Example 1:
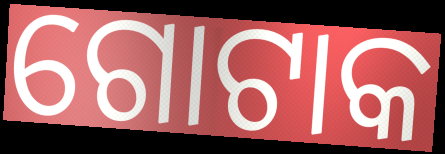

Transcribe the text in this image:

ଗୋଟାକ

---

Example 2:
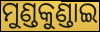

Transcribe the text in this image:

ମୁଣ୍ଡକୁଣ୍ଡାଇ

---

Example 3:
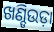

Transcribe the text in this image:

ଖଣ୍ଡିଉଡ଼ା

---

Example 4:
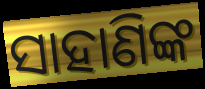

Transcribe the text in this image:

ସାହାଣିଙ୍କ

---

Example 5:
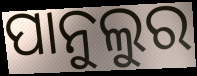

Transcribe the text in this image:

ପାନୁଲୁର